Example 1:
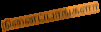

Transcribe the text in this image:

நினைப்பாங்களா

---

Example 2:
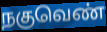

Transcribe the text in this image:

நகுவெண்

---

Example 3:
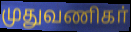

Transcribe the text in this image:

முதுவணிகர்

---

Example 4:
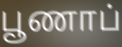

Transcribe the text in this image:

பூணாப்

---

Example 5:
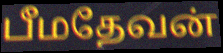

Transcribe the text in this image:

பீமதேவன்